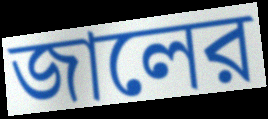
জালের